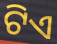
ଟିଏ